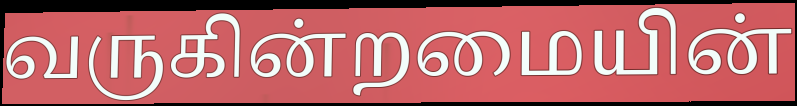
வருகின்றமையின்